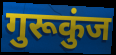
गुरूकुंज